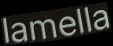
lamella